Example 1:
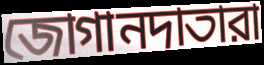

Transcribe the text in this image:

জোগানদাতারা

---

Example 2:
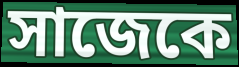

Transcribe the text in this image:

সাজেকে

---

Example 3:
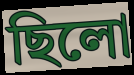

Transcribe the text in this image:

ছিলো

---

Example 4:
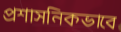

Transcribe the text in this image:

প্রশাসনিকভাবে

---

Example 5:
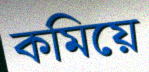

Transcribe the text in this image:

কমিয়ে